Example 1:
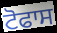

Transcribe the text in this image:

ਟੋਫਾਸ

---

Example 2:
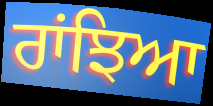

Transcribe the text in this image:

ਰਾਂਝਿਆ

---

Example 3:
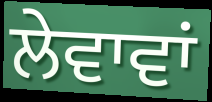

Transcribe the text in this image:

ਲੇਵਾਵਾਂ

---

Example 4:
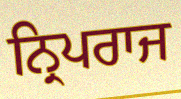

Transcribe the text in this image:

ਨ੍ਰਿਪਰਾਜ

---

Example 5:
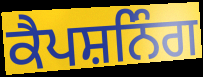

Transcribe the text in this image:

ਕੈਪਸ਼ਨਿੰਗ